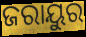
ଜରାୟୁର